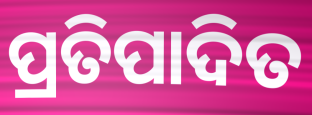
ପ୍ରତିପାଦିତ